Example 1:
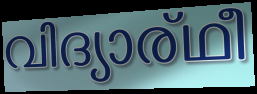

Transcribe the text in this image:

വിദ്യാര്ഥീ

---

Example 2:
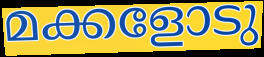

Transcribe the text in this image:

മക്കളോടു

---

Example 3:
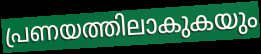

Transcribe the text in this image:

പ്രണയത്തിലാകുകയും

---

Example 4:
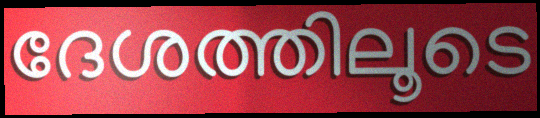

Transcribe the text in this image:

ദേശത്തിലൂടെ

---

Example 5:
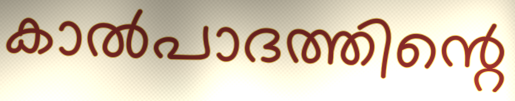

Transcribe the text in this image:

കാൽപാദത്തിന്റെ